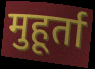
मुहूर्ता